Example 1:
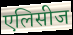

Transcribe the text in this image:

एलिसीज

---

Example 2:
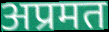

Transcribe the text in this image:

अप्रमत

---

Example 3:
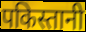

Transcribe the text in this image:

पकिस्तानी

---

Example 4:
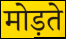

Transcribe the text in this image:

मोड़ते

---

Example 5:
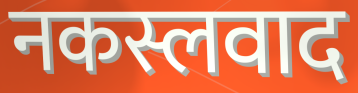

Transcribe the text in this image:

नकस्लवाद